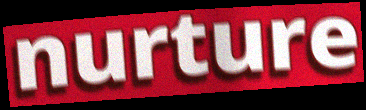
nurture